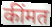
कींमत